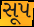
સૂપ